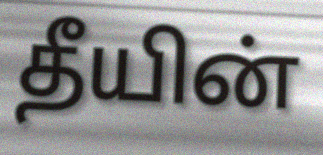
தீயின்